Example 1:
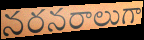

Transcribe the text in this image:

నరనరాలుగా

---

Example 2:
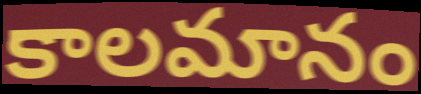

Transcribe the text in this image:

కాలమానం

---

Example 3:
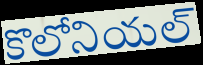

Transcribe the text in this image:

కొలోనియల్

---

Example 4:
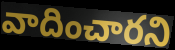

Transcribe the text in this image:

వాదించారని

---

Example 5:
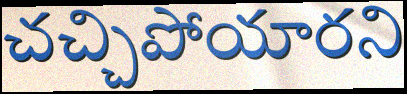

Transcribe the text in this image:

చచ్చిపోయారని